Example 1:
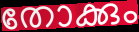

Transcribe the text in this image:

തോക്കും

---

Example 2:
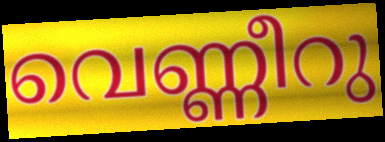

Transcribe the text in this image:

വെണ്ണീറു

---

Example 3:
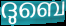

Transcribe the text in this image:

ദുബെ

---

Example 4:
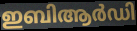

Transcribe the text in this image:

ഇബിആർഡി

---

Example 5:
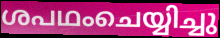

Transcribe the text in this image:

ശപഥംചെയ്യിച്ചു